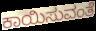
ಕಾಯಿಸುವಂತೆ